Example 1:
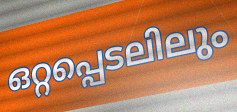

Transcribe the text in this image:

ഒറ്റപ്പെടലിലും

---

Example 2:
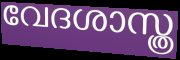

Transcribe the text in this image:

വേദശാസ്ത്ര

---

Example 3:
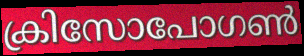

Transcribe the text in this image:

ക്രിസോപോഗൺ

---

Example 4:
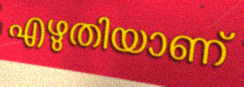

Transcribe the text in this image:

എഴുതിയാണ്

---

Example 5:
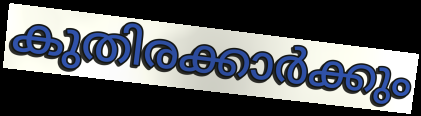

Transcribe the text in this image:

കുതിരക്കാർക്കും